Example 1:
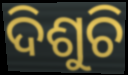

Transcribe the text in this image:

ଦିଶୁଚି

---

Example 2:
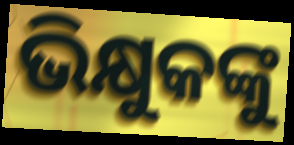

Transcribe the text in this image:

ଭିକ୍ଷୁକଙ୍କୁ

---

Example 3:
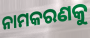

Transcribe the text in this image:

ନାମକରଣକୁ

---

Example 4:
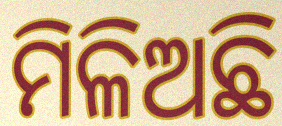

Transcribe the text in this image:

ମିଳିଅଛି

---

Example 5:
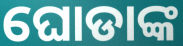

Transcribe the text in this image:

ଘୋଡାଙ୍କ